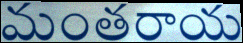
మంతరాయ